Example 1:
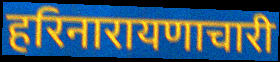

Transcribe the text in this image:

हरिनारायणाचारी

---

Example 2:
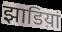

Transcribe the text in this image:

झाडिय़ां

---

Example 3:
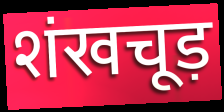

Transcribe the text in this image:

शंखचूड़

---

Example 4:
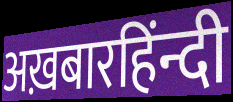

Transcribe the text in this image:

अख़बारहिंन्दी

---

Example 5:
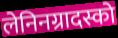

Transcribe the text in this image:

लेनिनग्रादस्को